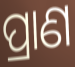
ପ୍ରାଣ